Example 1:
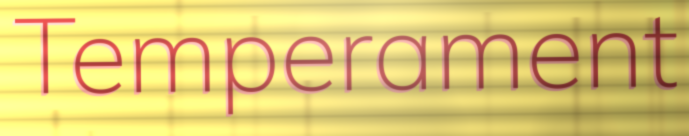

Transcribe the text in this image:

Temperament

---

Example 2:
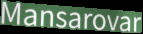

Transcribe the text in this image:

Mansarovar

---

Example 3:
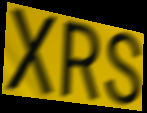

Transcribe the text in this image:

XRS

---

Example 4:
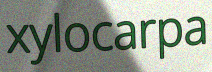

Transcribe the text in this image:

xylocarpa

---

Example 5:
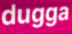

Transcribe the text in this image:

dugga